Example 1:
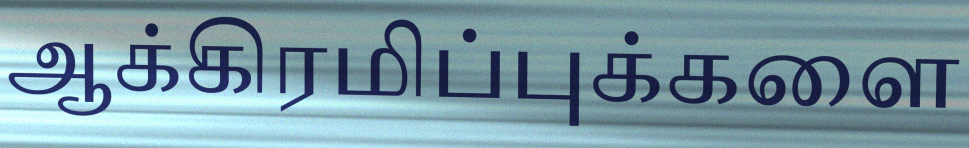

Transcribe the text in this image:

ஆக்கிரமிப்புக்களை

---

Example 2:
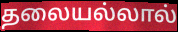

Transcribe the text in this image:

தலையல்லால்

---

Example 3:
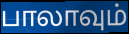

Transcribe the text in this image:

பாலாவும்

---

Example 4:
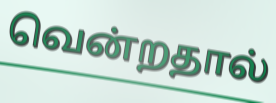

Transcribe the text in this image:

வென்றதால்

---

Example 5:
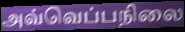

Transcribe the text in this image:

அவ்வெப்பநிலை